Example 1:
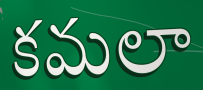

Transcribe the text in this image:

కమలా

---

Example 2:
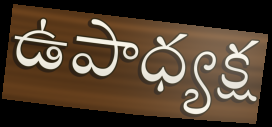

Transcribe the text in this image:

ఉపాధ్యక్ష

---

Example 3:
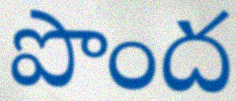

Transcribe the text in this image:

పొంద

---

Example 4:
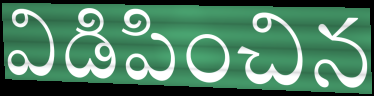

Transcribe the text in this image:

విడిపించిన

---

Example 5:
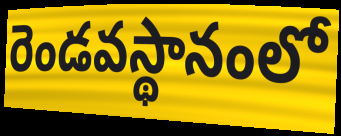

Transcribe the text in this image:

రెండవస్థానంలో